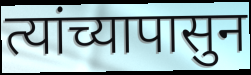
त्यांच्यापासुन